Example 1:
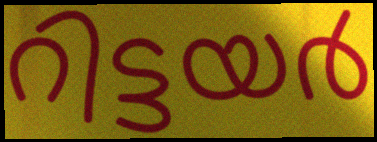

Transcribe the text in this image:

റിട്ടയർ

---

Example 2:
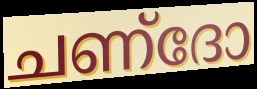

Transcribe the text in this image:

ചണ്ദോ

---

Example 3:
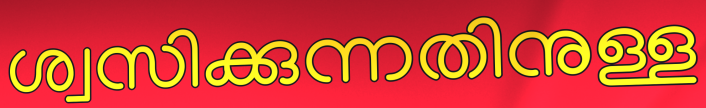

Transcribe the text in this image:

ശ്വസിക്കുന്നതിനുള്ള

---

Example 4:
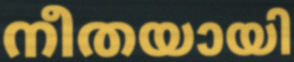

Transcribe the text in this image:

നീതയായി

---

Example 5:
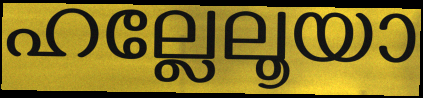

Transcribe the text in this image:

ഹല്ലേലൂയാ